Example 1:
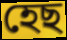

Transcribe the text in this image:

হেছ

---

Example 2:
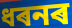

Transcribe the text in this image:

ধৰনৰ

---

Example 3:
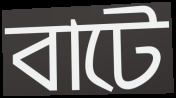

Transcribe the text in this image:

বাটে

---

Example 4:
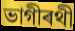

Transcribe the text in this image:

ভাগীৰথী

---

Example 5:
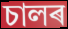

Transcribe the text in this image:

চালৰ